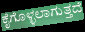
ಕೈಗೊಳ್ಳಲಾಗುತ್ತದೆ